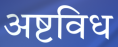
अष्टविध